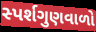
સ્પર્શગુણવાળો